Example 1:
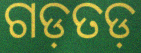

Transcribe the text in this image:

ଗଡ଼ତଡ଼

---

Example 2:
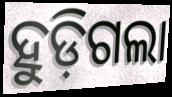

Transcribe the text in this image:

ହୁଡ଼ିଗଲା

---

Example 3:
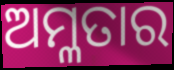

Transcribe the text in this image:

ଅମ୍ଳତାର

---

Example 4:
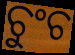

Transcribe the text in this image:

ଚୁଂଚ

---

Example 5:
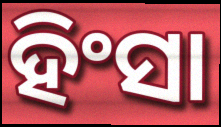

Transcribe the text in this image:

ହିଂସା